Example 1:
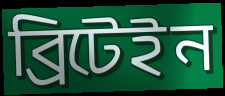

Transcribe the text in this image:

ব্ৰিটেইন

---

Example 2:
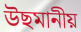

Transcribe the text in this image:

উছমানীয়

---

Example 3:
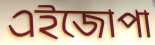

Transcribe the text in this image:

এইজোপা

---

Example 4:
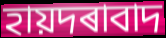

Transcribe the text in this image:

হায়দৰাবাদ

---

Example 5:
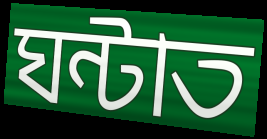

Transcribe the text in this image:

ঘন্টাত